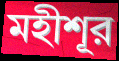
মহীশূর